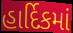
હાર્દિકમાં